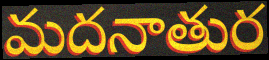
మదనాతుర